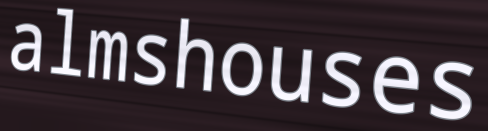
almshouses